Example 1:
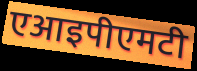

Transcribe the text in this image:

एआइपीएमटी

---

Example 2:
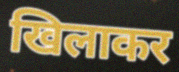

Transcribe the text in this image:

खिलाकर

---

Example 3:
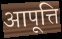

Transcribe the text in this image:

आपूत्ति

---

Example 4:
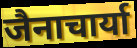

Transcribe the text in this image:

जैनाचार्या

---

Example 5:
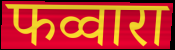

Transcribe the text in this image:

फव्वारा